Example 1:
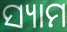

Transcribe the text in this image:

ସ୍ୟାମ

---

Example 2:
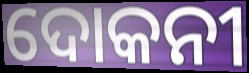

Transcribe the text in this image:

ଦୋକନୀ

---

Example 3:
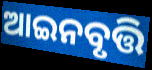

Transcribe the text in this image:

ଆଇନବୃତ୍ତି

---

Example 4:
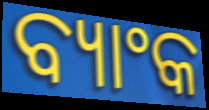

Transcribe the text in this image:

ବ୍ୟାଂକ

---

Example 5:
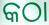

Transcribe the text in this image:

କଠା